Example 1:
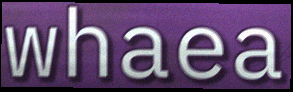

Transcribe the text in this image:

whaea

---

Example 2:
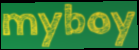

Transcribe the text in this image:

myboy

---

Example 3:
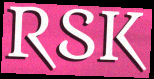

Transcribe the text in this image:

RSK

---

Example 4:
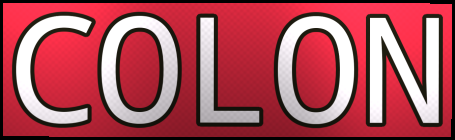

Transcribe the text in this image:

COLON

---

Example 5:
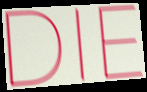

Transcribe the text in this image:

DIE